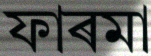
ফাৰমা